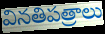
వినతిపత్రాలు